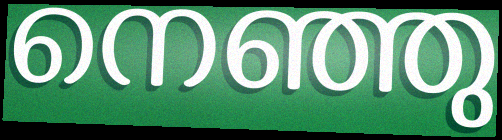
നെഞ്ഞു